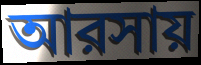
আরসায়